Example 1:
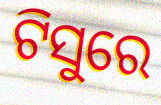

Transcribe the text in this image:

ଟିସୁରେ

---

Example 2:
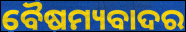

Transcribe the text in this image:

ବୈଷମ୍ୟବାଦର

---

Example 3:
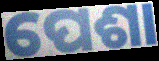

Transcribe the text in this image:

ପେଶା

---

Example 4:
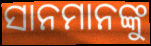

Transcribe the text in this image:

ସାନମାନଙ୍କୁ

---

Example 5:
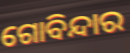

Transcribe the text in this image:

ଗୋବିନ୍ଦାର